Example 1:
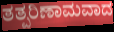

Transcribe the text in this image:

ತತ್ಪರಿಣಾಮವಾದ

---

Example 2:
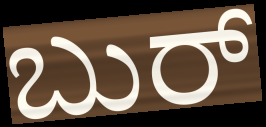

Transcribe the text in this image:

ಬುರ್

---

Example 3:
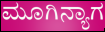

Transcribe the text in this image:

ಮೂಗಿನ್ಯಾಗ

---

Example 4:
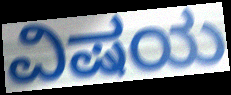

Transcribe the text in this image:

ವಿಷಯ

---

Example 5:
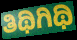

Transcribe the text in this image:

ತಿಥಿಗಿಥಿ